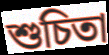
শুচিতা